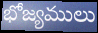
భోజ్యములు